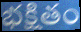
భక్షితం